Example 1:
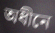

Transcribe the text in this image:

অধীনে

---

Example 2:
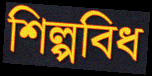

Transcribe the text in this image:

শিল্পবিধ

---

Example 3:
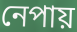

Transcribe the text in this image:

নেপায়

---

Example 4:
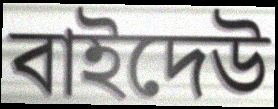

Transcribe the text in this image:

বাইদেউ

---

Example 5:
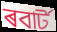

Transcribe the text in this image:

ৰবাৰ্ট